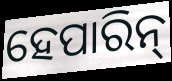
ହେପାରିନ୍